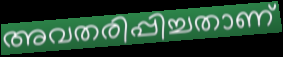
അവതരിപ്പിച്ചതാണ്